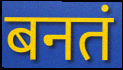
बनतं